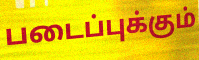
படைப்புக்கும்